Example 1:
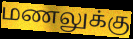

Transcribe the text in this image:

மணலுக்கு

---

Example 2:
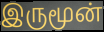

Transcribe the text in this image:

இருமூன்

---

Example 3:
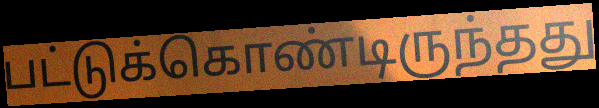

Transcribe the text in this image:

பட்டுக்கொண்டிருந்தது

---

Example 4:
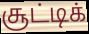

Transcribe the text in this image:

சூட்டிக்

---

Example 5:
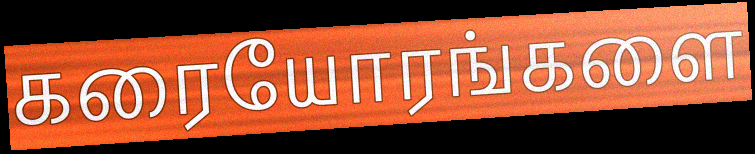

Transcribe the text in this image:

கரையோரங்களை